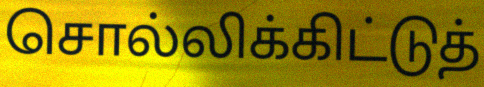
சொல்லிக்கிட்டுத்